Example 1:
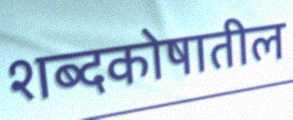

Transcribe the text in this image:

शब्दकोषातील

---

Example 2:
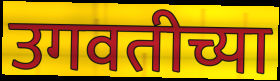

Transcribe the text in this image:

उगवतीच्या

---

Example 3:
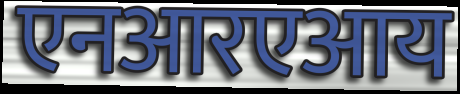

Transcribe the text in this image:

एनआरएआय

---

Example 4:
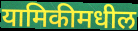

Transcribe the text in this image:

यामिकीमधील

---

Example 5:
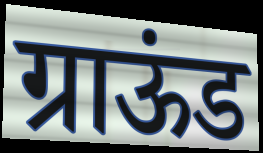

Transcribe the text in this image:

ग्राऊंड